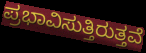
ಪ್ರಭಾವಿಸುತ್ತಿರುತ್ತವೆ